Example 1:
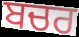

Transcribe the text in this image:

ਬਚਰ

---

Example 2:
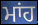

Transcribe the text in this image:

ਮਾਂਹ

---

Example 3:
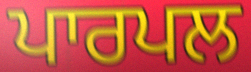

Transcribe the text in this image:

ਪਾਰਪਲ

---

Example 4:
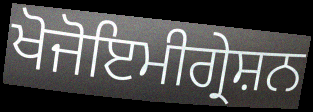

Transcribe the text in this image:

ਖੋਜੋਇਮੀਗ੍ਰੇਸ਼ਨ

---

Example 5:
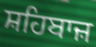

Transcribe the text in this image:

ਸ਼ਹਿਬਾਜ਼